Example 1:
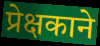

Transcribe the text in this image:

प्रेक्षकाने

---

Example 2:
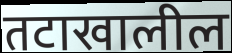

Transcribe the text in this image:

तटाखालील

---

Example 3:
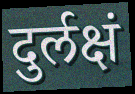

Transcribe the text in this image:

दुर्लक्षं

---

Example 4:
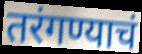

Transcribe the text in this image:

तरंगण्याचं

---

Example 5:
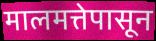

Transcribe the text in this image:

मालमत्तेपासून